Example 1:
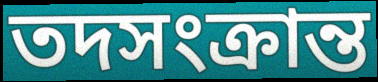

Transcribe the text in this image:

তদসংক্রান্ত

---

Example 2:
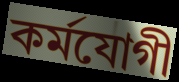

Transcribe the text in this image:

কর্মযোগী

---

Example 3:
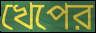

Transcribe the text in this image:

খেপের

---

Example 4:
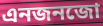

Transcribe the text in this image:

এনজনজো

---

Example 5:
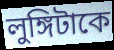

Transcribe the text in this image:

লুঙ্গিটাকে